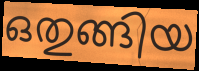
ഒതുങ്ങിയ